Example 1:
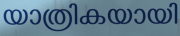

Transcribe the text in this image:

യാത്രികയായി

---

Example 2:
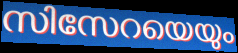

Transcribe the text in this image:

സിസേറയെയും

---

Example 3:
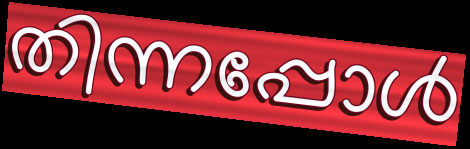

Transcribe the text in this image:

തിന്നപ്പോൾ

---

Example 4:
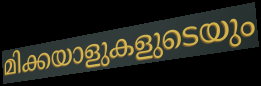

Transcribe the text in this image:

മിക്കയാളുകളുടെയും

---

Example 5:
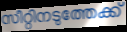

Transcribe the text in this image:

സീറ്റിനടുത്തേക്ക്